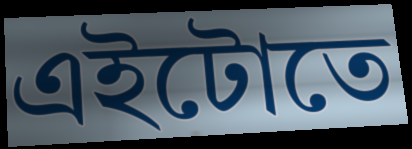
এইটোতে